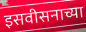
इसवीसनाच्या